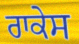
ਰਾਕੇਸ